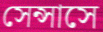
সেন্সাসে